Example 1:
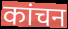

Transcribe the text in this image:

कांचन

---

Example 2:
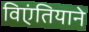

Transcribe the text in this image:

विएंतियाने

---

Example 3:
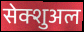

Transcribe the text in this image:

सेक्शुअल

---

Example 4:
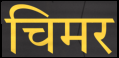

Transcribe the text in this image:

चिमर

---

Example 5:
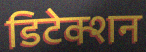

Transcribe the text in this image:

डिटेक्शन